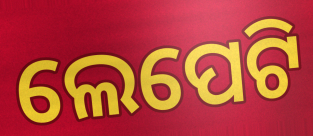
ଲେପେଟି